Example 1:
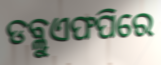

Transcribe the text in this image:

ଡବ୍ଲୁଏଫପିରେ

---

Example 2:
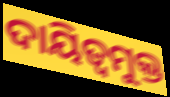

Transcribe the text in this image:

ଦାୟିତ୍ବମୁକ୍ତ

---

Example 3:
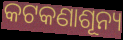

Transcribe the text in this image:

କଟକଣାଶୂନ୍ୟ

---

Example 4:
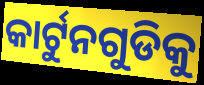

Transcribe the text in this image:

କାର୍ଟୁନଗୁଡିକୁ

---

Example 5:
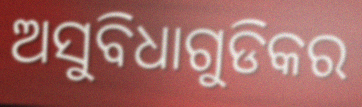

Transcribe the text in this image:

ଅସୁବିଧାଗୁଡିକର